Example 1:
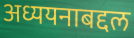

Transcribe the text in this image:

अध्ययनाबद्दल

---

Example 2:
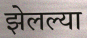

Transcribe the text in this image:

झेलल्या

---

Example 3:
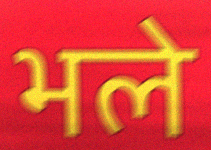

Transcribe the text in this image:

भले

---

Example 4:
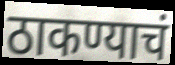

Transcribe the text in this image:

ठाकण्याचं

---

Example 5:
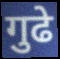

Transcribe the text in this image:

गुढे